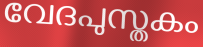
വേദപുസ്തകം